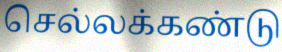
செல்லக்கண்டு